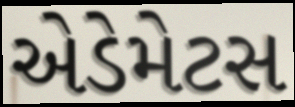
એડેમેટસ